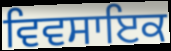
ਵਿਵਸਾਇਕ